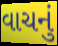
વાચનું